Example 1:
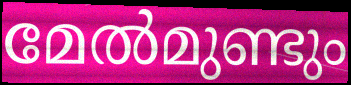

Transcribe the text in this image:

മേൽമുണ്ടും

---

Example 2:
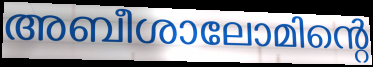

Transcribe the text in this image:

അബീശാലോമിന്റെ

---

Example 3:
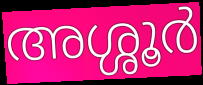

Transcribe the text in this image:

അശ്ശൂർ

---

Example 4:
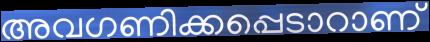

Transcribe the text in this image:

അവഗണിക്കപ്പെടാറാണ്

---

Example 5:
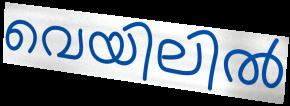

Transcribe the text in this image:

വെയിലിൽ